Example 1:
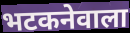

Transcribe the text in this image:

भटकनेवाला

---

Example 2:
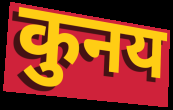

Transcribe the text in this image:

कुनय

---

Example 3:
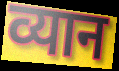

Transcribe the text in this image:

व्यान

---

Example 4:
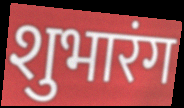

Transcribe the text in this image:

शुभारंग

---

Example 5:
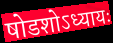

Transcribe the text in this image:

षोडशोऽध्यायः